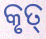
କୃତ୍